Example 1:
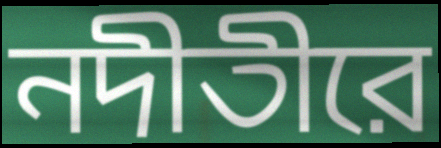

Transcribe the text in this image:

নদীতীরে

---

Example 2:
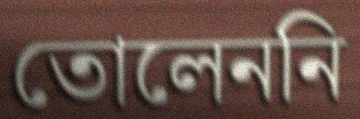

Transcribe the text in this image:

তোলেননি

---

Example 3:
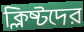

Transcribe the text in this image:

ক্লিষ্টদের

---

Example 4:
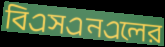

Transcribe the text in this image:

বিএসএনএলের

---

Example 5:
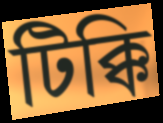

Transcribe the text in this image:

টিক্কি